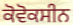
ਕੋਵੋਕਸੀਨ